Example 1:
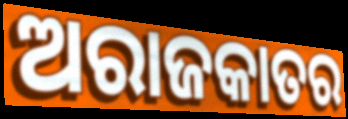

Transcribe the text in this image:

ଅରାଜକାତର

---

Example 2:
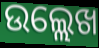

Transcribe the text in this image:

ଉଲ୍ଲେଖ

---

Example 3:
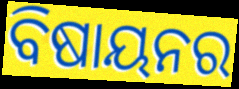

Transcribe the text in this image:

ବିଷାୟନର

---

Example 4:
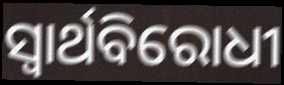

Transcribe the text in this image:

ସ୍ବାର୍ଥବିରୋଧୀ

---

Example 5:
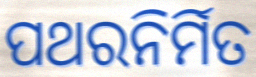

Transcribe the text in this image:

ପଥରନିର୍ମିତ